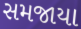
સમજાયા